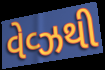
વેવ્ઝથી